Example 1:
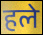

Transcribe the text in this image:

हले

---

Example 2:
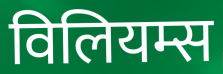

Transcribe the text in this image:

विलियम्‍स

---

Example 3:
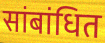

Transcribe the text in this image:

सांबांधित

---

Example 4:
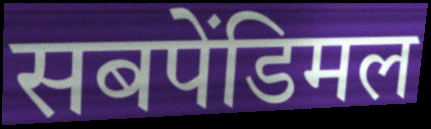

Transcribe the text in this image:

सबपेंडिमल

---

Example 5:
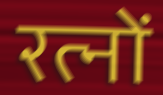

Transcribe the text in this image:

रत्‍नों